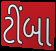
ટીંબા